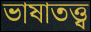
ভাষাতত্ত্ব